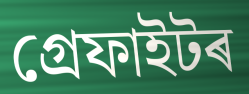
গ্ৰেফাইটৰ